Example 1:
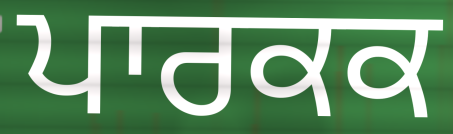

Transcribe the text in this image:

ਪਾਰਕਕ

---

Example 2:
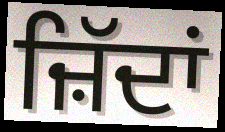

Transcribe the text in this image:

ਜ਼ਿੱਦਾਂ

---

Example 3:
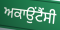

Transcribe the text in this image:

ਅਕਾਉਂਟੈਂਸੀ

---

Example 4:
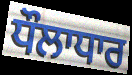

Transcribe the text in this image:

ਧੌਲਾਧਾਰ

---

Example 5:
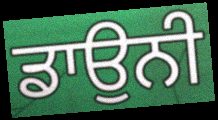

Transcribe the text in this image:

ਡਾਉਨੀ